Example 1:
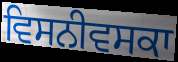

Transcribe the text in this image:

ਵਿਸਨੀਵਸਕਾ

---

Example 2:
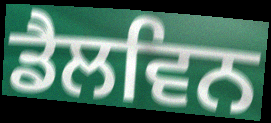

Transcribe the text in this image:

ਡੈਲਵਿਨ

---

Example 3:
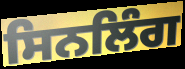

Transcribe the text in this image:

ਸਿਨਲਿੰਗ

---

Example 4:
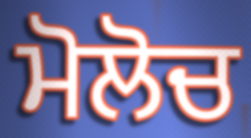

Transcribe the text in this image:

ਮੋਲੋਚ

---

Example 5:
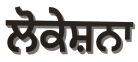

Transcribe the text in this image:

ਲੋਕੇਸ਼ਨਾ